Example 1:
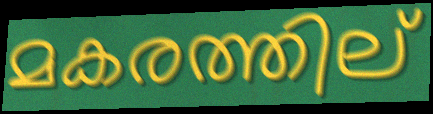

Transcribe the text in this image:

മകരത്തില്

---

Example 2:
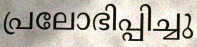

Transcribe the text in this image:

പ്രലോഭിപ്പിച്ചു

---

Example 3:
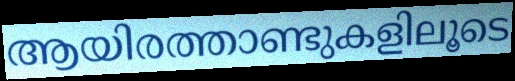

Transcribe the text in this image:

ആയിരത്താണ്ടുകളിലൂടെ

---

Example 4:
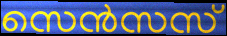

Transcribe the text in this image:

സെൻസസ്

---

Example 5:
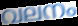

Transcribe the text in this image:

വലനം